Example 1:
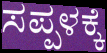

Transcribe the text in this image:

ಸಪ್ಪಳಕ್ಕೆ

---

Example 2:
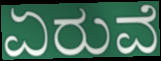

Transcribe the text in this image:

ಏರುವೆ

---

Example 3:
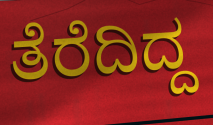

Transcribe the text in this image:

ತೆರೆದಿದ್ದ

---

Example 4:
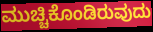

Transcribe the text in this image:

ಮುಚ್ಚಿಕೊಂಡಿರುವುದು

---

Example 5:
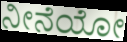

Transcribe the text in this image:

ನೀನೆಯೋ